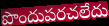
పొందుపరచలేదు